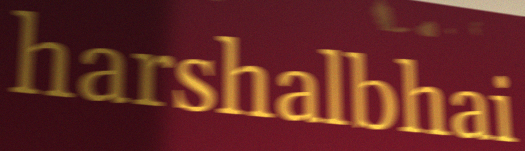
harshalbhai